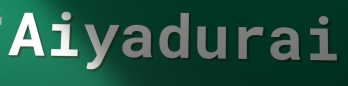
Aiyadurai